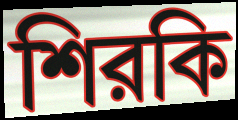
শিরকি